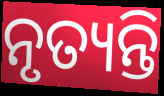
ନୃତ୍ୟନ୍ତି